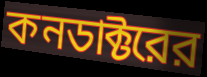
কনডাক্টরের